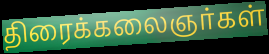
திரைக்கலைஞர்கள்